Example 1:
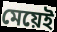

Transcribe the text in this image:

মেয়েই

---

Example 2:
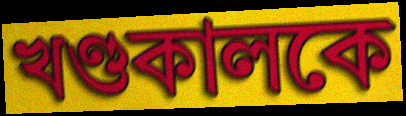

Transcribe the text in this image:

খণ্ডকালকে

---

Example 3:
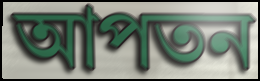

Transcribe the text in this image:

আপতন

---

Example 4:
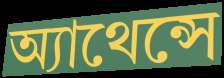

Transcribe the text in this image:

অ্যাথেন্সে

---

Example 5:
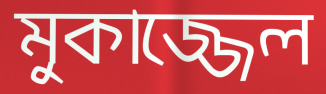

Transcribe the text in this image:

মুকাজ্জেল